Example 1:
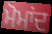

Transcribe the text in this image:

ਮੋਮਾਂਦ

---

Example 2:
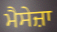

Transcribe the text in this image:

ਮੈਸੇਜ਼ਾ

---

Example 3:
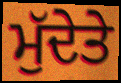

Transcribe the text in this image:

ਮੁੱਦੇਤੇ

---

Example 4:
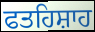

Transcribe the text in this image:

ਫਤਹਿਸ਼ਾਹ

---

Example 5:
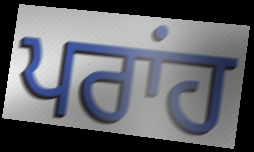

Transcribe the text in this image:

ਪਰਾਂਹ